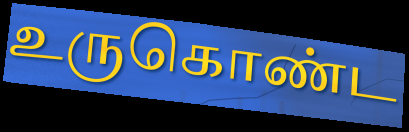
உருகொண்ட